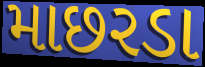
માછરડા